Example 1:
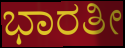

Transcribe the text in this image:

ಭಾರತೀ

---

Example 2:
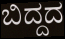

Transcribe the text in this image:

ಬಿದ್ದದ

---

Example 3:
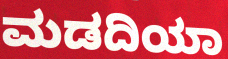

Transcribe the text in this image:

ಮಡದಿಯಾ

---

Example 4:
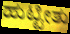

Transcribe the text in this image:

ಹುಟ್ಟೀತು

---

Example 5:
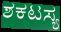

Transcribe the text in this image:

ಶಕಟಸ್ಯ